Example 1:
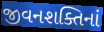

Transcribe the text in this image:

જીવનશક્તિનાં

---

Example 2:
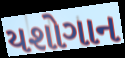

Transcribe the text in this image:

યશોગાન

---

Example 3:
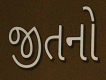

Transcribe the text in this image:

જીતનો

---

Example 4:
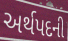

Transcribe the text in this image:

અર્થપદની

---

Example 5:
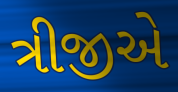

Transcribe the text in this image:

ત્રીજીએ